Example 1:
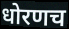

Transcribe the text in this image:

धोरणच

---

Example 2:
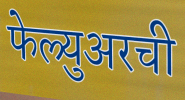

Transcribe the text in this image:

फेल्युअरची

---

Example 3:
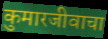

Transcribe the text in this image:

कुमारजीवाचा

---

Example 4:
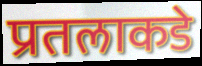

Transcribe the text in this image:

प्रतलाकडे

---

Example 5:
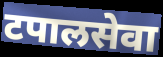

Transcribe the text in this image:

टपालसेवा